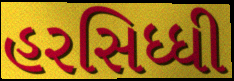
હરસિધ્ધી